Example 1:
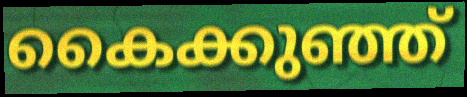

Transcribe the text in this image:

കൈക്കുഞ്ഞ്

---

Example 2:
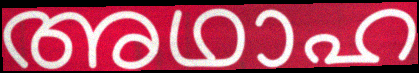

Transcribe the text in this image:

അഥാഹ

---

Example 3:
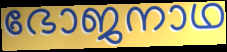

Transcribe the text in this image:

ഭോജനാഥ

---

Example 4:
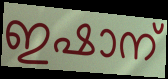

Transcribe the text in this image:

ഇഷാന്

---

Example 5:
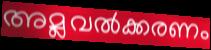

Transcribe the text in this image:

അമ്ലവൽക്കരണം